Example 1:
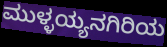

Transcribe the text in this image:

ಮುಳ್ಳಯ್ಯನಗಿರಿಯ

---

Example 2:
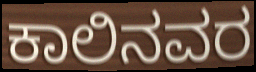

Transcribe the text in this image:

ಕಾಲಿನವರ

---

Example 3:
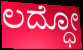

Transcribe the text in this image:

ಲದ್ಧೋ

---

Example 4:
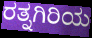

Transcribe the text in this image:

ರತ್ನಗಿರಿಯ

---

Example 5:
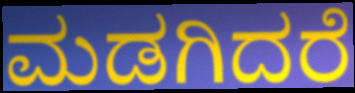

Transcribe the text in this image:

ಮಡಗಿದರೆ